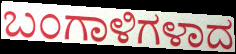
ಬಂಗಾಳಿಗಳಾದ